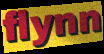
flynn